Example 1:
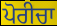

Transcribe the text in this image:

ਪੋਰੀਚਾ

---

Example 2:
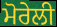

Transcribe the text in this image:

ਮੋਰੇਲੀ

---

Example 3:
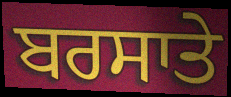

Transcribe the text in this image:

ਬਰਸਾਤੇ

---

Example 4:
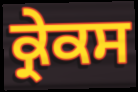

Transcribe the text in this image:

ਕ੍ਰੇਕਸ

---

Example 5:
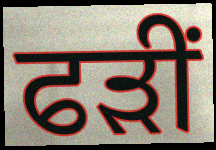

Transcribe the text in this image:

ਫੜੀਂ